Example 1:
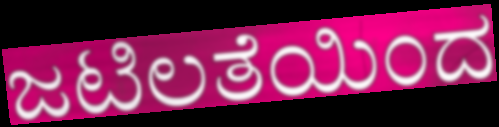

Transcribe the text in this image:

ಜಟಿಲತೆಯಿಂದ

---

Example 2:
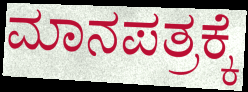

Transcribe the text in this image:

ಮಾನಪತ್ರಕ್ಕೆ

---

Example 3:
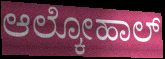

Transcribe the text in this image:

ಆಲ್ಕೋಹಾಲ್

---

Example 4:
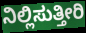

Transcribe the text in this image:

ನಿಲ್ಲಿಸುತ್ತೀರಿ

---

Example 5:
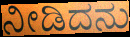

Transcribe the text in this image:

ನೀಡಿದನು